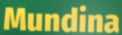
Mundina